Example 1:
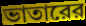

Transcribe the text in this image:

ভাতারের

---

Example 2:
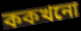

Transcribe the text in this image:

ককখনো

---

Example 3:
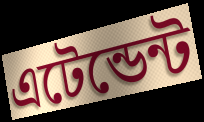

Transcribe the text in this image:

এটেন্ডেন্ট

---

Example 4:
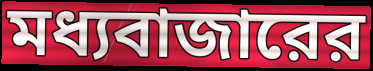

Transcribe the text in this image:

মধ্যবাজারের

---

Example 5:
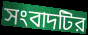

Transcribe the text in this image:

সংবাদটির